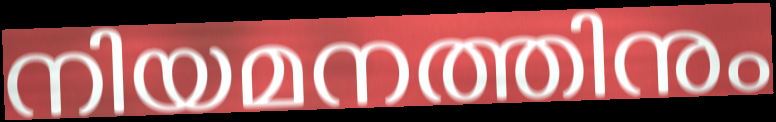
നിയമനത്തിനും